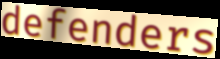
defenders